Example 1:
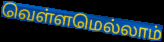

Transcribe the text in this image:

வெள்ளமெல்லாம்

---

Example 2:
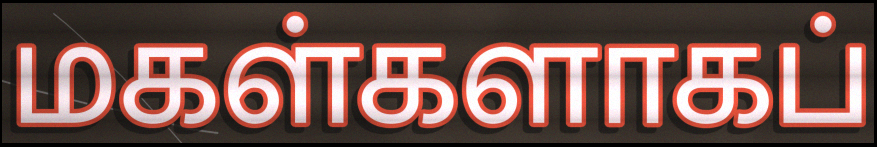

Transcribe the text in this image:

மகள்களாகப்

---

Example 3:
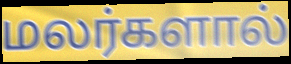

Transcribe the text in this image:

மலர்களால்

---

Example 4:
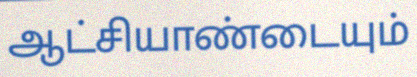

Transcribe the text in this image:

ஆட்சியாண்டையும்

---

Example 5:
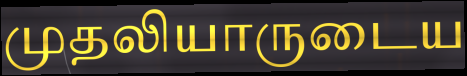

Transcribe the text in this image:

முதலியாருடைய